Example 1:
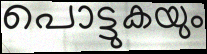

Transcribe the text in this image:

പൊട്ടുകയും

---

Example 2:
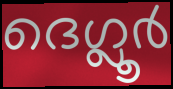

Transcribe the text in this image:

ദെഗ്ലൂർ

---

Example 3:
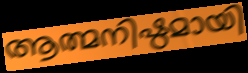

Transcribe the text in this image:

ആത്മനിഷ്ഠമായി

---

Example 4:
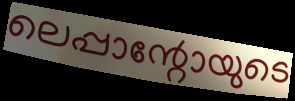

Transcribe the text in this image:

ലെപ്പാന്റോയുടെ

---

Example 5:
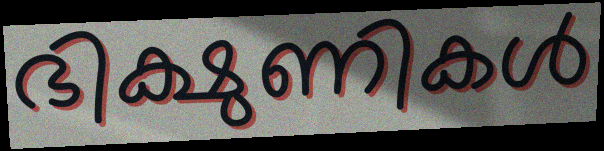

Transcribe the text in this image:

ഭിക്ഷുണികൾ